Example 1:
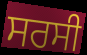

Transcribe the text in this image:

ਸਰਸੀ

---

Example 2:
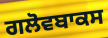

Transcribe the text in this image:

ਗਲੋਵਬਾਕਸ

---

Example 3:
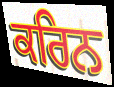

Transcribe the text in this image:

ਕਰਿਨ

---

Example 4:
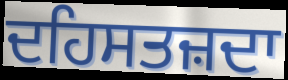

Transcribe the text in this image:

ਦਹਿਸਤਜ਼ਦਾ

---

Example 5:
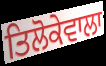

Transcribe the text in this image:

ਤਿਲੋਕੇਵਾਲਾ